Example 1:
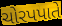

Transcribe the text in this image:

ચોરપપાતે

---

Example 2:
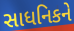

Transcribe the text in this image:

સાધનિકને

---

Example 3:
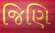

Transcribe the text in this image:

જિણિ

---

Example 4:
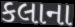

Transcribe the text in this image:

કલાના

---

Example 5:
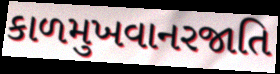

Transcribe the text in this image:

કાળમુખવાનરજાતિ